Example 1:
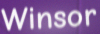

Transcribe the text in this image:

Winsor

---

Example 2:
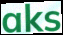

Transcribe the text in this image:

aks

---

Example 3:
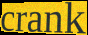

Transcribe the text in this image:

crank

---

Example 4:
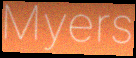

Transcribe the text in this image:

Myers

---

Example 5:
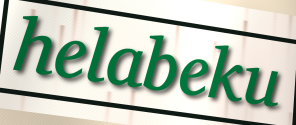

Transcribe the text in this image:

helabeku